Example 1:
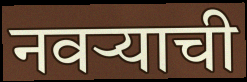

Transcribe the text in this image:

नवर्‍याची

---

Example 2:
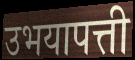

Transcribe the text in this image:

उभयापत्ती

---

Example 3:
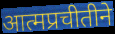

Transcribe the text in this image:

आत्मप्रचीतीने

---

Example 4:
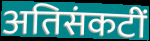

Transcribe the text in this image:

अतिसंकटीं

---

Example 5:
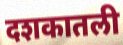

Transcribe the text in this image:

दशकातली